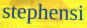
stephensi